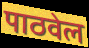
पाठवेल